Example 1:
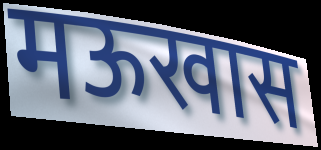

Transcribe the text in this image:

मऊखास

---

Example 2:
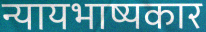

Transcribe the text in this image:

न्यायभाष्यकार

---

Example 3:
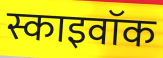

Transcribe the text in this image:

स्काइवॉक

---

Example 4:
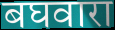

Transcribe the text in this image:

बघवारा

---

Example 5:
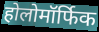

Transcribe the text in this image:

होलोमॉर्फिक